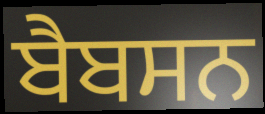
ਬੈਬਸਨ